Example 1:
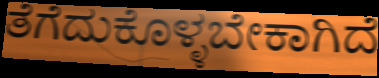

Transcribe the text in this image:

ತೆಗೆದುಕೊಳ್ಳಬೇಕಾಗಿದೆ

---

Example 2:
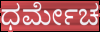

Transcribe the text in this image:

ಧರ್ಮೇಚ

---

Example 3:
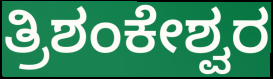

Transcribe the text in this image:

ತ್ರಿಶಂಕೇಶ್ವರ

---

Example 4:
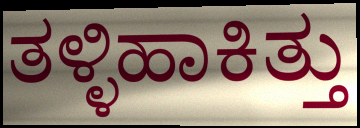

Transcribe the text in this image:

ತಳ್ಳಿಹಾಕಿತ್ತು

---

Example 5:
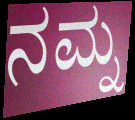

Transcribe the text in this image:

ನಮ್ನ